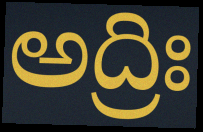
అద్రిః